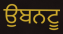
ਉਬਨਟੂ